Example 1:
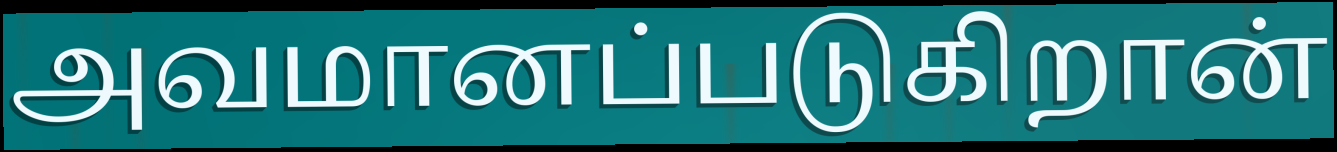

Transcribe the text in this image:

அவமானப்படுகிறான்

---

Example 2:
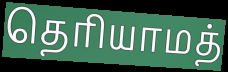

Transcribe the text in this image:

தெரியாமத்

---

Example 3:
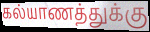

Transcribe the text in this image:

கல்யாணத்துக்கு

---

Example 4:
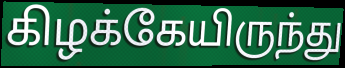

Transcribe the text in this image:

கிழக்கேயிருந்து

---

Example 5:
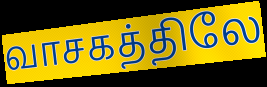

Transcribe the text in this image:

வாசகத்திலே